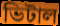
ভিটাল